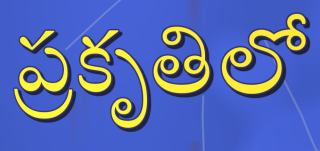
ప్రకృతిలో